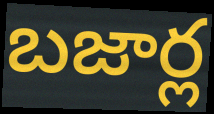
బజార్ల